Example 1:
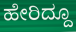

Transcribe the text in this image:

ಹೇರಿದ್ದೂ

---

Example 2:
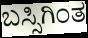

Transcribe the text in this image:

ಬಸ್ಸಿಗಿಂತ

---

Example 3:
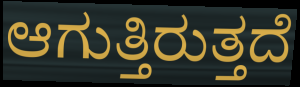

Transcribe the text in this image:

ಆಗುತ್ತಿರುತ್ತದೆ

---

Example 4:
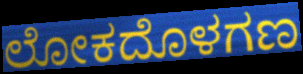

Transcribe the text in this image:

ಲೋಕದೊಳಗಣ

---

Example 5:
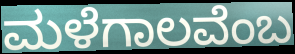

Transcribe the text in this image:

ಮಳೆಗಾಲವೆಂಬ